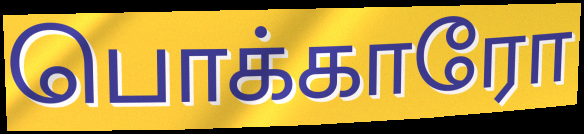
பொக்காரோ